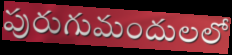
పురుగుమందులలో